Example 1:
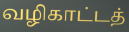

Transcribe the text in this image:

வழிகாட்டத்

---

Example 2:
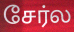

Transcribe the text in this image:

சேர்ல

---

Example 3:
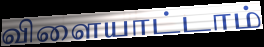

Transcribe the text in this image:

விளையாட்டாம்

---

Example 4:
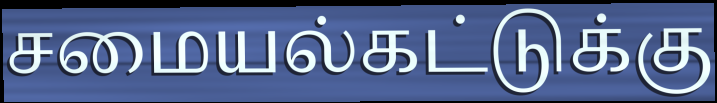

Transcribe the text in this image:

சமையல்கட்டுக்கு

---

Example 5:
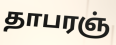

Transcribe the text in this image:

தாபரஞ்